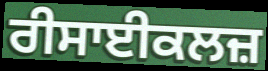
ਰੀਸਾਈਕਲਜ਼